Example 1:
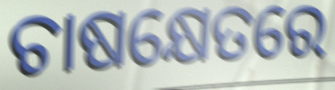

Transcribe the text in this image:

ଚାଷକ୍ଷେତରେ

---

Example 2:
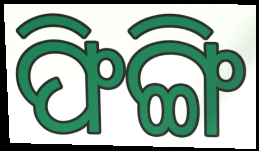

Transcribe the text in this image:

ଫିଙ୍ଗି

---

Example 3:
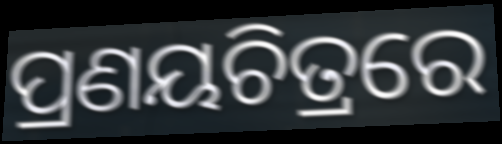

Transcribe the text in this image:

ପ୍ରଣୟଚିତ୍ରରେ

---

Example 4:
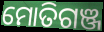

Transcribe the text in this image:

ମୋତିଗଞ୍ଜ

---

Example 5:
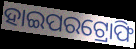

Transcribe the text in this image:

ହାଇପରଟ୍ରୋଫି